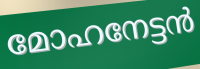
മോഹനേട്ടൻ